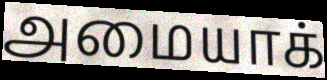
அமையாக்